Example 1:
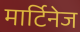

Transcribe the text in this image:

मार्टिनेज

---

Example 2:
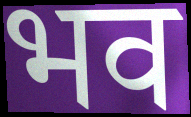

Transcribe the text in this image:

भव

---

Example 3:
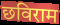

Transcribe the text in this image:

छविराम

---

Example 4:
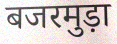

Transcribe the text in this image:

बजरमुड़ा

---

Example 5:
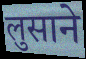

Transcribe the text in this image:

लुसाने